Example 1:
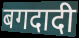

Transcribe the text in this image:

बगदादी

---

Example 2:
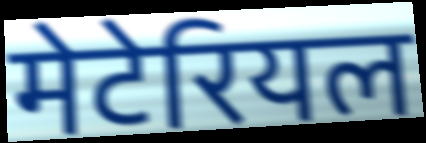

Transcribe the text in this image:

मेटेरियल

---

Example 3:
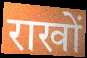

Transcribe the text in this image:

राखों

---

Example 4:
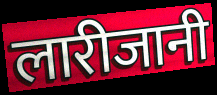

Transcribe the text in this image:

लारीजानी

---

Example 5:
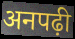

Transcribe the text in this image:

अनपढ़ी